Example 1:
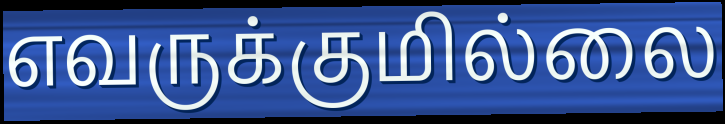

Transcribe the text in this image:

எவருக்குமில்லை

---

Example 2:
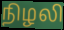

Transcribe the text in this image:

நிழலி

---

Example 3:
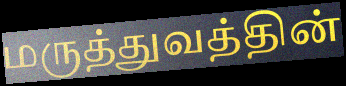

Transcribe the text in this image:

மருத்துவத்தின்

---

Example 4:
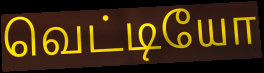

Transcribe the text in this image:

வெட்டியோ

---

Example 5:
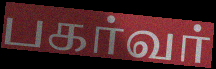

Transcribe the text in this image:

பகர்வர்